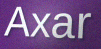
Axar